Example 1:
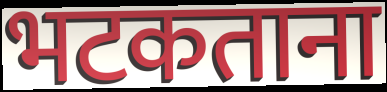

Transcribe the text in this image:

भटकताना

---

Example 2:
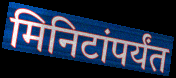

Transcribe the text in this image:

मिनिटांपर्यंत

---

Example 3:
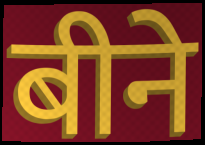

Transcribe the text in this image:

बीने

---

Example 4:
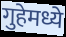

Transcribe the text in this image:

गुहेमध्ये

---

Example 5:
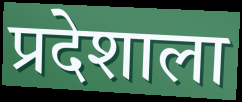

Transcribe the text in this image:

प्रदेशाला